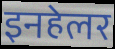
इनहेलर